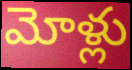
మోళ్లు